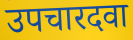
उपचारदवा